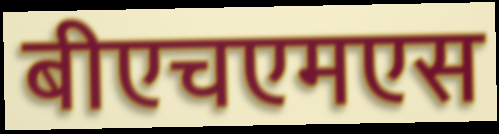
बीएचएमएस